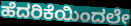
ಹೆದರಿಕೆಯಿಂದಲೇ